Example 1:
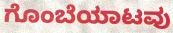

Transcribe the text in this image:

ಗೊಂಬೆಯಾಟವು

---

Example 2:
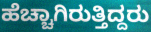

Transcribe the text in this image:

ಹೆಚ್ಚಾಗಿರುತ್ತಿದ್ದರು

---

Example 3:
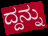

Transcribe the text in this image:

ದ್ದನ್ನು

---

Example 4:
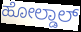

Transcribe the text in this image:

ಹೋಲ್ಡಾಲ್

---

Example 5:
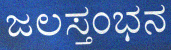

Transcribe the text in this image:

ಜಲಸ್ತಂಭನ